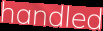
handled